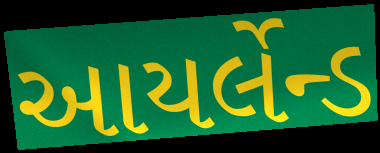
આયર્લેન્ડ